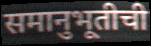
समानुभूतीची